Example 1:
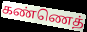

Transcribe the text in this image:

கண்ணெத்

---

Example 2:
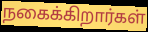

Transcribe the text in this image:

நகைக்கிறார்கள்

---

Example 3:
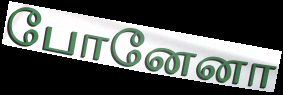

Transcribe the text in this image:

போனேனா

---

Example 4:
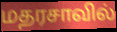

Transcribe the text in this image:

மதரசாவில்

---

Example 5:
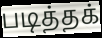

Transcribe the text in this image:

படித்தக்